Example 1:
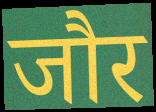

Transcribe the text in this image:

जौर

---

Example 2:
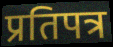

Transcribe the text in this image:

प्रतिपत्र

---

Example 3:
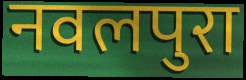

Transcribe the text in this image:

नवलपुरा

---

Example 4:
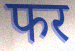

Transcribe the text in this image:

फर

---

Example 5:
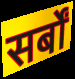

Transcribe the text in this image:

सर्बों